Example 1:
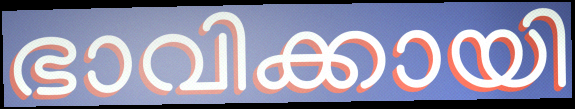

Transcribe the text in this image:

ഭാവിക്കായി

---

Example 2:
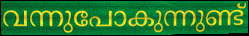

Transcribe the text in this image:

വന്നുപോകുന്നുണ്ട്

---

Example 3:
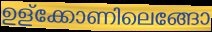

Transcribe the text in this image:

ഉള്ക്കോണിലെങ്ങോ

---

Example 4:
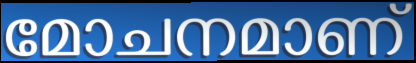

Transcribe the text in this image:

മോചനമാണ്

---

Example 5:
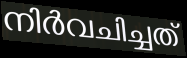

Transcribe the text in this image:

നിർവചിച്ചത്